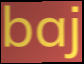
baj